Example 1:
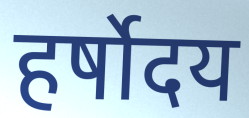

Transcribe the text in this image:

हर्षोदय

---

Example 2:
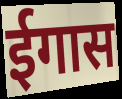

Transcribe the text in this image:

ईगास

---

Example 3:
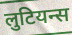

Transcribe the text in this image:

लुटियन्स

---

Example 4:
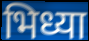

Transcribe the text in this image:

भिध्या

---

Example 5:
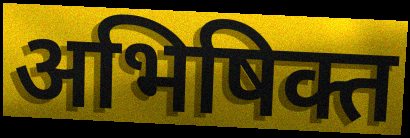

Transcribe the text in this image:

अभिषिक्त